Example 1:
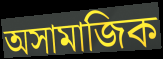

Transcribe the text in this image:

অসামাজিক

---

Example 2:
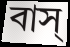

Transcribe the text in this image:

বাস্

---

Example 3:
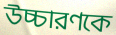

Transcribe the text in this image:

উচ্চারণকে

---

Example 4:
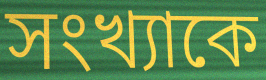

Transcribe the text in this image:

সংখ্যাকে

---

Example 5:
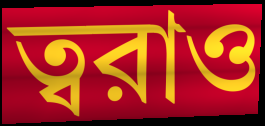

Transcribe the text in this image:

ত্বরাও